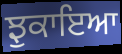
ਝੁਕਾਇਆ